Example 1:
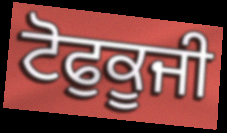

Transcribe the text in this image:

ਟੋਫੁਕੂਜੀ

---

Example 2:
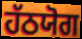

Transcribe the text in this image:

ਹੱਠਯੋਗ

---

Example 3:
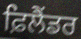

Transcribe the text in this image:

ਫ਼ਿਲੈਂਡਰ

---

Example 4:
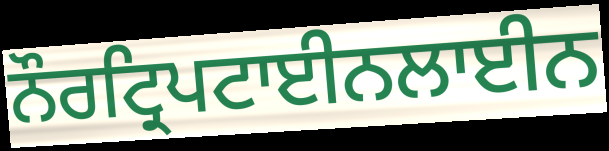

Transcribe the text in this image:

ਨੌਰਟ੍ਰਿਪਟਾਈਨਲਾਈਨ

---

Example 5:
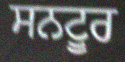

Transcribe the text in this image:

ਸਨਟੂਰ